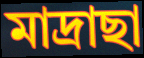
মাদ্ৰাছা